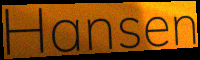
Hansen